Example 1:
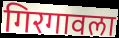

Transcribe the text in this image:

गिरगावला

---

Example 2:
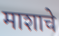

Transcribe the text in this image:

माशाचे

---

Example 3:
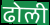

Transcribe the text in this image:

ढोली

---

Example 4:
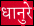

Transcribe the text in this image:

धानुरे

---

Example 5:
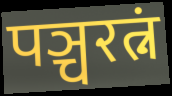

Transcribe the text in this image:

पञ्चरत्नं